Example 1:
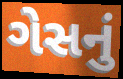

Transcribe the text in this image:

ગેસનું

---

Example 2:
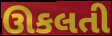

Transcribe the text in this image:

ઊકલતી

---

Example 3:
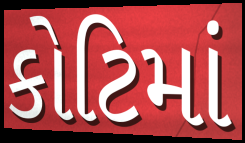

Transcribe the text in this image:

કોટિમાં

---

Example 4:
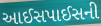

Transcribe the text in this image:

આઈસપાઈસની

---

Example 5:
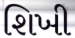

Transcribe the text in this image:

શિખી